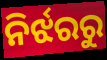
ନିର୍ଝରରୁ